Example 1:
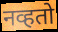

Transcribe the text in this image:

नव्हतो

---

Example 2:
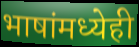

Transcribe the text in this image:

भाषांमध्येही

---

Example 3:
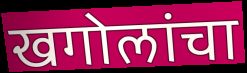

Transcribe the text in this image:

खगोलांचा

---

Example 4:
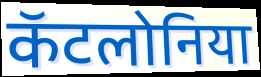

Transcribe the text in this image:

कॅटलोनिया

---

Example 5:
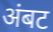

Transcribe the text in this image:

अंबट